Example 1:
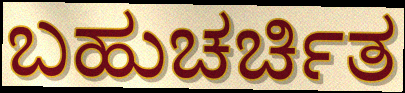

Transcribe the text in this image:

ಬಹುಚರ್ಚಿತ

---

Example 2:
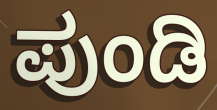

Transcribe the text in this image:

ಪುಂಡಿ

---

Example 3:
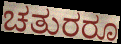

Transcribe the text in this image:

ಚತುರರೂ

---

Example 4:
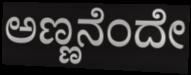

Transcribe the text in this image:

ಅಣ್ಣನೆಂದೇ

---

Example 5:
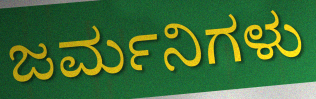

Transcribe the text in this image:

ಜರ್ಮನಿಗಳು